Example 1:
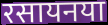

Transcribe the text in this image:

रसायनया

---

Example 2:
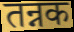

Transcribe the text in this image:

तन्नक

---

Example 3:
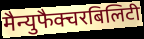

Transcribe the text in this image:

मैन्युफैक्चरबिलिटी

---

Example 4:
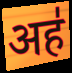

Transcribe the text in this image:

अह॑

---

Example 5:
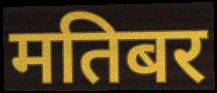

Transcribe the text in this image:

मतिबर